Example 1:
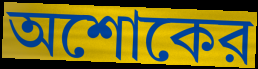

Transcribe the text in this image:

অশোকের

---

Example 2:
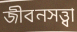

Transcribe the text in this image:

জীবনসত্ত্বা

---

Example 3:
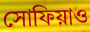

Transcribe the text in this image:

সোফিয়াও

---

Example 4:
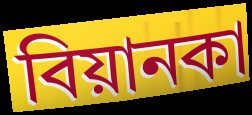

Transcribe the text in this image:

বিয়ানকা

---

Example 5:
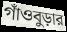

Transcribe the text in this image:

গাঁওবুড়ার